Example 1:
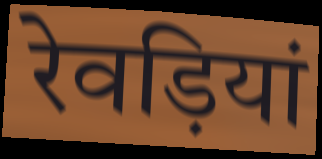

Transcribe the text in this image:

रेवड़ियां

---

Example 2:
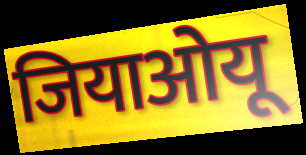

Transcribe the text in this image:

जियाओयू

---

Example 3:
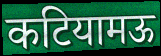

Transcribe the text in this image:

कटियामऊ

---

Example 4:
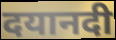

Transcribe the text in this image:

दयानदी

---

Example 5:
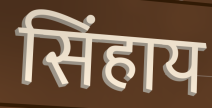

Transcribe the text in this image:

सिंहाय